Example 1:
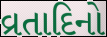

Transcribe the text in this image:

વ્રતાદિનો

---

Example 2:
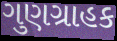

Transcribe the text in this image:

ગુણગ્રાહક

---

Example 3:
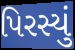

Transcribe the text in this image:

પિરસ્યું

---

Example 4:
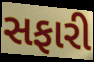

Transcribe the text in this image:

સફારી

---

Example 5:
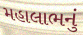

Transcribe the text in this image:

મહાલાભનું